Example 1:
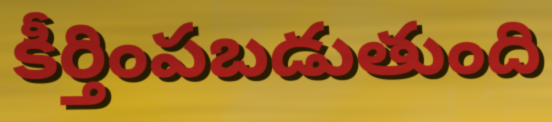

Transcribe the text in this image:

కీర్తింపబడుతుంది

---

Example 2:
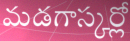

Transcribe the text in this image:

మడగాస్కర్లో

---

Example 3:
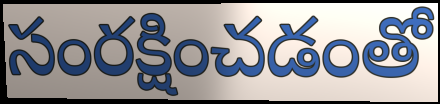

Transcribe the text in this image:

సంరక్షించడంతో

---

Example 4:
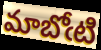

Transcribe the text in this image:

మాబోఁటి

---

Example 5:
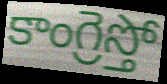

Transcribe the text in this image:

కాంగ్రెస్తో